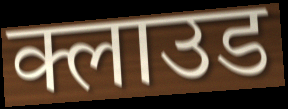
क्‍लाउड